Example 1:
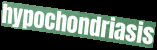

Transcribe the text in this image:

hypochondriasis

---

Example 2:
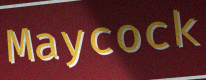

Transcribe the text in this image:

Maycock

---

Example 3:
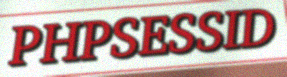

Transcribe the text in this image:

PHPSESSID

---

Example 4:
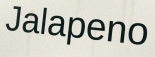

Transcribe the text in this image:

Jalapeno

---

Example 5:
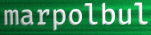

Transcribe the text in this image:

marpolbul